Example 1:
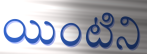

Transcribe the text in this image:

యింటిని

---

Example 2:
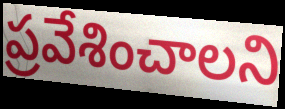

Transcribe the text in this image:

ప్రవేశించాలని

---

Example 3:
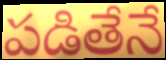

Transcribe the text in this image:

పడితేనే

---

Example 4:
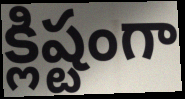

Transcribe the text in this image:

క్లిష్టంగా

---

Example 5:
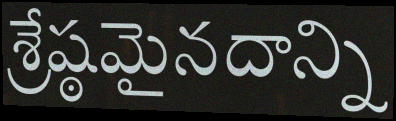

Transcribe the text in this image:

శ్రేష్ఠమైనదాన్ని